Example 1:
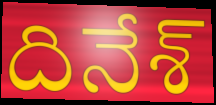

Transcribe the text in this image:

దినేశ్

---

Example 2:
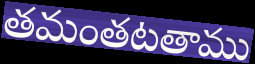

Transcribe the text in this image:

తమంతటతాము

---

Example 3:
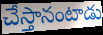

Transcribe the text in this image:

చేస్తానంటాడు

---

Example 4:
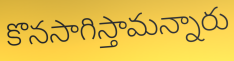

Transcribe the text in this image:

కొనసాగిస్తామన్నారు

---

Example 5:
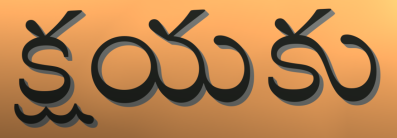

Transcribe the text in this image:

క్షయకు